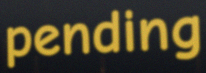
pending